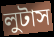
লুটাস